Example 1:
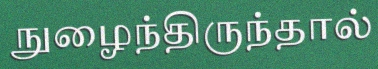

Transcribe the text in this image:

நுழைந்திருந்தால்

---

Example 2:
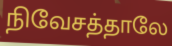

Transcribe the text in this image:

நிவேசத்தாலே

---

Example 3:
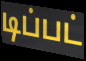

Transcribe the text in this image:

டிப்பட்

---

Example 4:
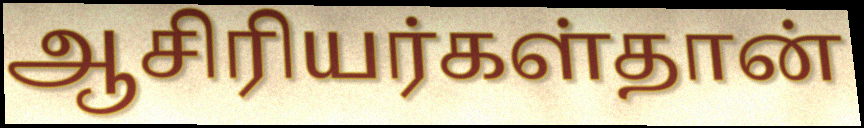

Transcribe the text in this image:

ஆசிரியர்கள்தான்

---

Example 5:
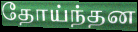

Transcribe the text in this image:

தோய்ந்தன